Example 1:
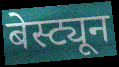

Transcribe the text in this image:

बेस्ट्यून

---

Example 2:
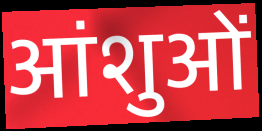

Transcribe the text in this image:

आंशुओं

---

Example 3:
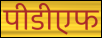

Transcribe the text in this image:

पीडीएफ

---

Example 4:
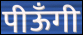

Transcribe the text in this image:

पीऊँगी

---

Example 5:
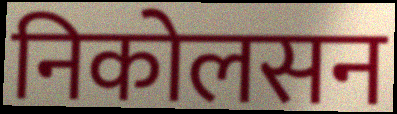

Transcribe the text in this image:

निकोलसन